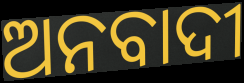
ଅନବାଦୀ